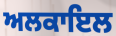
ਅਲਕਾਇਲ